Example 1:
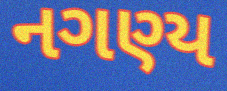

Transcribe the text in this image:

નગણ્ય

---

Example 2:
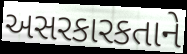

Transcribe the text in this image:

અસરકારકતાને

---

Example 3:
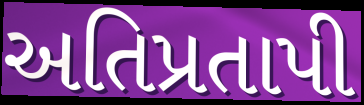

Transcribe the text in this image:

અતિપ્રતાપી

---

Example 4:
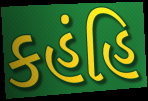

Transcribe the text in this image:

કહંહિ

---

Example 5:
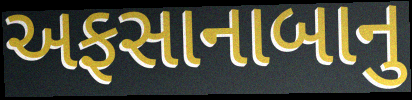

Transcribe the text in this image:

અફસાનાબાનુ